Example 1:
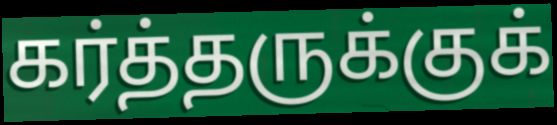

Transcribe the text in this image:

கர்த்தருக்குக்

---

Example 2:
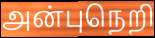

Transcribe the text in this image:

அன்புநெறி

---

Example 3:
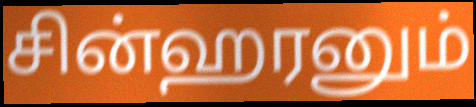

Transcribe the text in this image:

சின்ஹரனும்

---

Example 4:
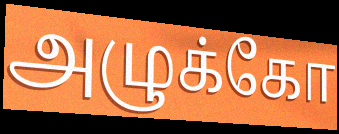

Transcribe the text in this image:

அழுக்கோ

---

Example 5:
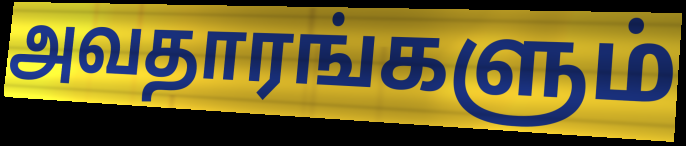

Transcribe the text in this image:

அவதாரங்களும்